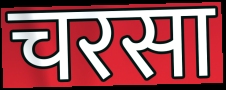
चरसा